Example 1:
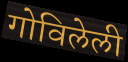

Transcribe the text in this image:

गोविलेली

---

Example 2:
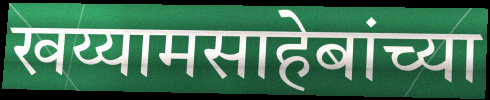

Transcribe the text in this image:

खय्यामसाहेबांच्या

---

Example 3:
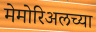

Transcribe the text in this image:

मेमोरिअलच्या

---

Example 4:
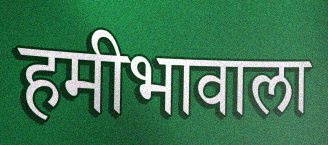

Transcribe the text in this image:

हमीभावाला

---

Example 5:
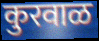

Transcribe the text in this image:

कुरवाळ